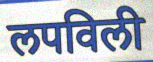
लपविली